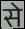
से